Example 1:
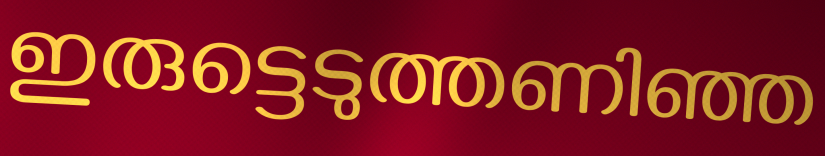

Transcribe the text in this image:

ഇരുട്ടെടുത്തണിഞ്ഞ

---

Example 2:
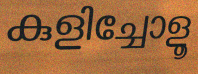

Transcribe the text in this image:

കുളിച്ചോളൂ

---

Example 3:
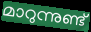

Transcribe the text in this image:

മാറുന്നുണ്ട്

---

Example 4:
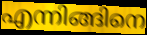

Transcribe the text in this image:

എന്നിങ്ങിനെ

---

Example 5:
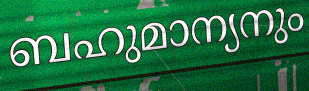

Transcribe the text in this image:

ബഹുമാന്യനും